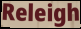
Releigh